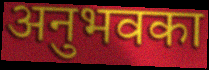
अनुभवका